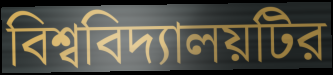
বিশ্ববিদ্যালয়টির